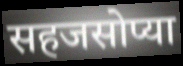
सहजसोप्या